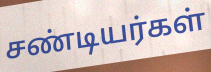
சண்டியர்கள்